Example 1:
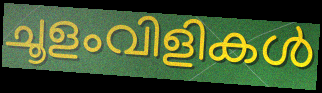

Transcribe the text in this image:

ചൂളംവിളികൾ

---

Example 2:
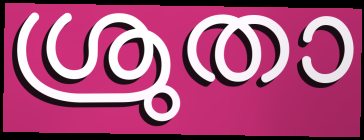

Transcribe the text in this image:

ശ്രുതാ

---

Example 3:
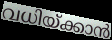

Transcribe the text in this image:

വധിയ്ക്കാൻ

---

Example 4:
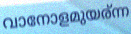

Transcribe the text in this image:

വാനോളമുയര്ന്ന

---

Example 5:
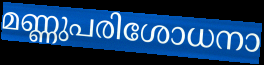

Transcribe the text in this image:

മണ്ണുപരിശോധനാ